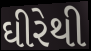
ઘીરેથી